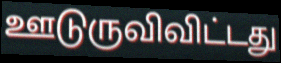
ஊடுருவிவிட்டது